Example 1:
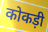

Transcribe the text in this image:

कोकड़ी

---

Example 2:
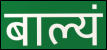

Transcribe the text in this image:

बाल्यं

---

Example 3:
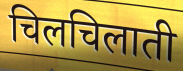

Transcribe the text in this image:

चिलचिलाती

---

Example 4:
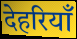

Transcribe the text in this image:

देहरियाँ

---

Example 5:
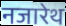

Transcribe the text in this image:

नजारेथ